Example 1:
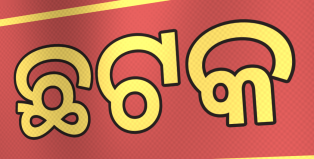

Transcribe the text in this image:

ଛଟକ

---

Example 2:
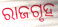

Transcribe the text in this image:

ରାଜଗୃହ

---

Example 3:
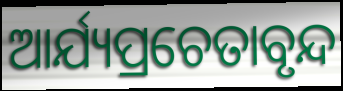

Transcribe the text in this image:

ଆର୍ଯ୍ୟପ୍ରଚେତାବୃନ୍ଦ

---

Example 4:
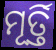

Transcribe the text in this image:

ମୂର୍ତ୍ତି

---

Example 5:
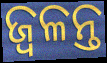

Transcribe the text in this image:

ଜ୍ବଳନ୍ତ